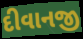
દીવાનજી